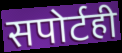
सपोर्टही